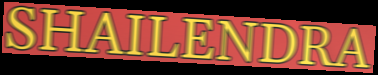
SHAILENDRA